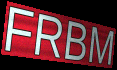
FRBM